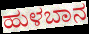
ಹುಳಬಾನ